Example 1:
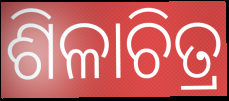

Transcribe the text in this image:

ଶିଳାଚିତ୍ର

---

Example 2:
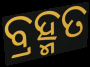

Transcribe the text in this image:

ବ୍ରହ୍ମତ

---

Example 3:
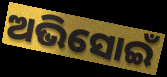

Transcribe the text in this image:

ଅଭିସୋଇଁ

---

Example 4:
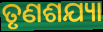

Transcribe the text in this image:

ତୃଣଶଯ୍ୟା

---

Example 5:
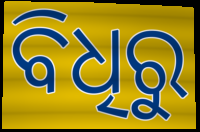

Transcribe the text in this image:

ବିଧିରୁ